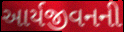
આર્યજીવનની